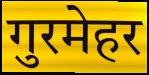
गुरमेहर